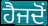
ਹੈਜਦੋਂ